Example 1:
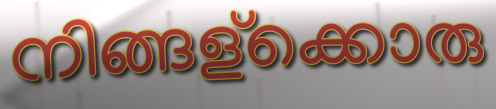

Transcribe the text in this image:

നിങ്ങള്ക്കൊരു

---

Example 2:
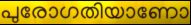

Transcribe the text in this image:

പുരോഗതിയാണോ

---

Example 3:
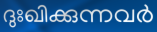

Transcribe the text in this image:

ദുഃഖിക്കുന്നവർ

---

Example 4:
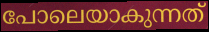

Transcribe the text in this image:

പോലെയാകുന്നത്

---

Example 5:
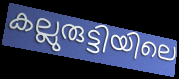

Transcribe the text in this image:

കല്ലുരുട്ടിയിലെ